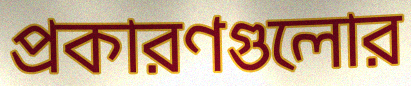
প্রকারণগুলোর